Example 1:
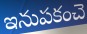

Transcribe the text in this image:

ఇనుపకంచె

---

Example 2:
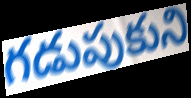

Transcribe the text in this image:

గడుపుకుని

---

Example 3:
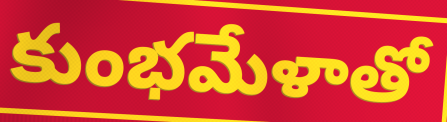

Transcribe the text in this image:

కుంభమేళాతో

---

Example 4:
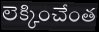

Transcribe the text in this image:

లెక్కించేంత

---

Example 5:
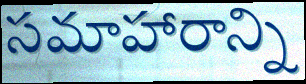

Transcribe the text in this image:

సమాహారాన్ని